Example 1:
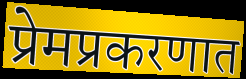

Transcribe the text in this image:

प्रेमप्रकरणात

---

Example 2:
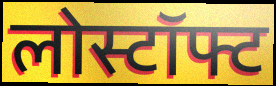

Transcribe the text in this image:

लोस्टॉफ्ट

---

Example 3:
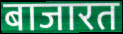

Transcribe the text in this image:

बाजारत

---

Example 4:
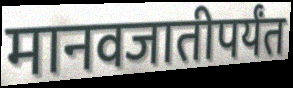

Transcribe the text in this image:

मानवजातीपर्यंत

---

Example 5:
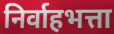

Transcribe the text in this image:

निर्वाहभत्ता